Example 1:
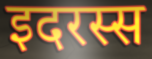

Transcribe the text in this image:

इदरस्स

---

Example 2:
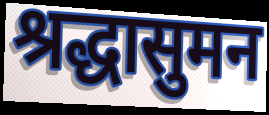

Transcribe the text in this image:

श्रद्धासुमन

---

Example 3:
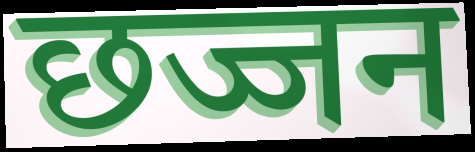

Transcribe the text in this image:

छज्जन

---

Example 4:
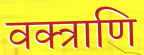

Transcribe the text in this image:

वक्त्राणि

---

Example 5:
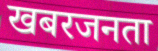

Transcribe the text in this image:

खबरजनता